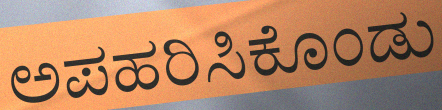
ಅಪಹರಿಸಿಕೊಂಡು